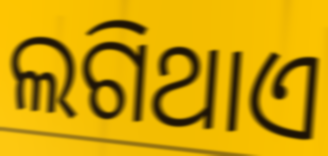
ଲଗିଥାଏ